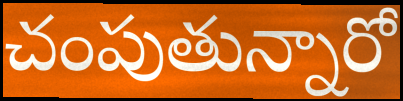
చంపుతున్నారో